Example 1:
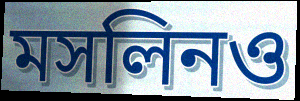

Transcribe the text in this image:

মসলিনও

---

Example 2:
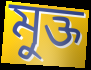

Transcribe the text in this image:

মুক্ত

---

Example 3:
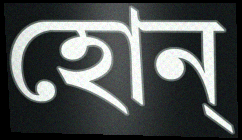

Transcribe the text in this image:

হোন্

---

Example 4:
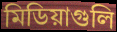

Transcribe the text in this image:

মিডিয়াগুলি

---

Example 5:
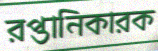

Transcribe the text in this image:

রপ্তানিকারক